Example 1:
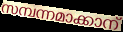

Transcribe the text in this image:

സമ്പന്നമാക്കാന്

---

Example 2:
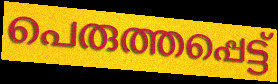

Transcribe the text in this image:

പെരുത്തപ്പെട്ട്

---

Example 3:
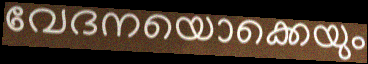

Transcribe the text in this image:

വേദനയൊക്കെയും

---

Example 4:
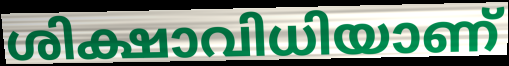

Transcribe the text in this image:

ശിക്ഷാവിധിയാണ്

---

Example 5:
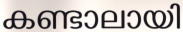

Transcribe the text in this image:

കണ്ടാലായി